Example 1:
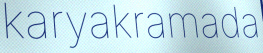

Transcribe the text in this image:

karyakramada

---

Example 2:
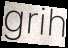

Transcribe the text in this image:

grih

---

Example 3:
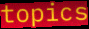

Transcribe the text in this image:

topics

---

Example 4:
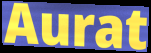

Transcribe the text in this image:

Aurat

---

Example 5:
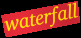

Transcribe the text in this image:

waterfall